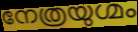
നേത്രയുഗ്മം